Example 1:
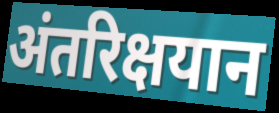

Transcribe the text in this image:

अंतरिक्षयान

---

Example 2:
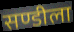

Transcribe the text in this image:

सण्डीला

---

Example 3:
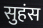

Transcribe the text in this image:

सुहंस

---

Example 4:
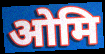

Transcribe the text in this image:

ओमि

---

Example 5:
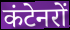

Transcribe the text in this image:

कंटेनरों